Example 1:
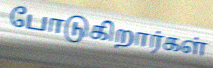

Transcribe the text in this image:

போடுகிறார்கள்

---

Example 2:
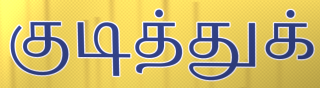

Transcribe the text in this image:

குடித்துக்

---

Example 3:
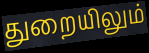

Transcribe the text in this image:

துறையிலும்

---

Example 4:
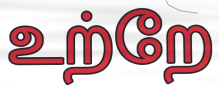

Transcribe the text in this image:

உற்றே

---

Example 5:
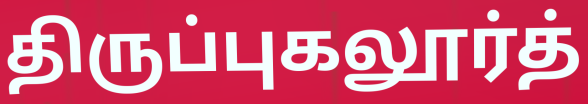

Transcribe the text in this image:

திருப்புகலூர்த்